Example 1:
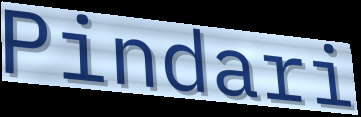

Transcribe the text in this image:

Pindari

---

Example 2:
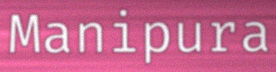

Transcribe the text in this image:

Manipura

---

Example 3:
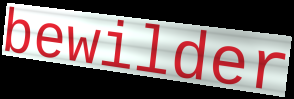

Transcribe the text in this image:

bewilder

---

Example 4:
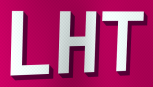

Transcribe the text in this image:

LHT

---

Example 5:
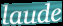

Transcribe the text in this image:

laude